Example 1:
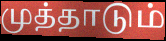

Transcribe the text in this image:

முத்தாடும்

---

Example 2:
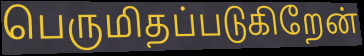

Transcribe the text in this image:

பெருமிதப்படுகிறேன்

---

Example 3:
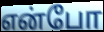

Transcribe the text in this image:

என்போ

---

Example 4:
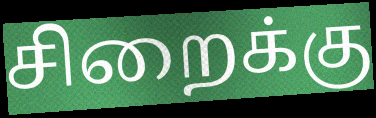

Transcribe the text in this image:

சிறைக்கு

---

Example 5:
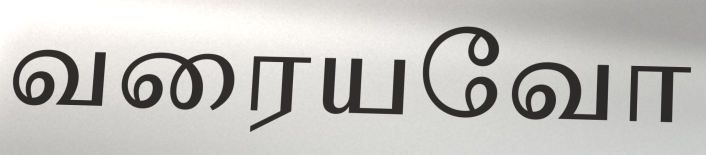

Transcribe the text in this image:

வரையவோ